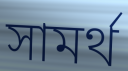
সামৰ্থ